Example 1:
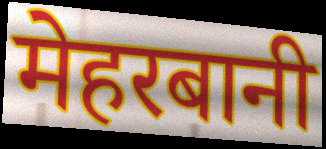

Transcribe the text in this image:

मेहरबानी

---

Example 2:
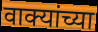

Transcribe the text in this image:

वाक्यांच्या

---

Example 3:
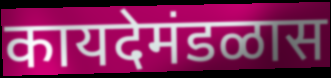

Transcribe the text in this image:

कायदेमंडळास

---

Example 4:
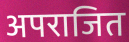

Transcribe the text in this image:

अपराजित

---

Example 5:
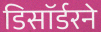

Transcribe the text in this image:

डिसॉर्डरने